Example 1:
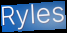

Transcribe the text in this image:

Ryles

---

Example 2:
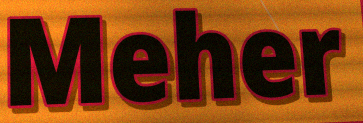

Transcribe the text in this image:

Meher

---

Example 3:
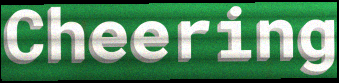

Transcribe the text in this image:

Cheering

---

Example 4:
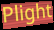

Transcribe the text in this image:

Plight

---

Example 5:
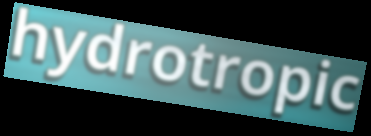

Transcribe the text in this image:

hydrotropic